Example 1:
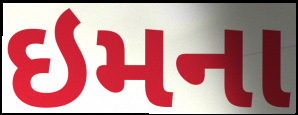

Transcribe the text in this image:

ઇમના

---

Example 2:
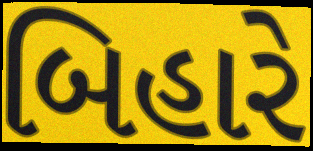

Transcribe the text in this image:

બિહારે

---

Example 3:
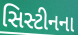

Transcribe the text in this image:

સિસ્ટીનના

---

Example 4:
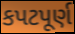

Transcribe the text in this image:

કપટપૂર્ણ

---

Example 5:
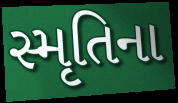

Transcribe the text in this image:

સ્મૃતિના